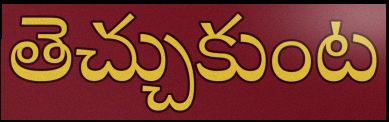
తెచ్చుకుంట